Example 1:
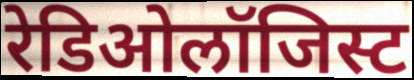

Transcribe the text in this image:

रेडिओलॉजिस्ट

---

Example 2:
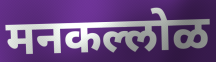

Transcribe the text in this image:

मनकल्लोळ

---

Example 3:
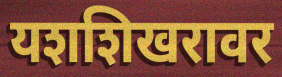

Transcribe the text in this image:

यशशिखरावर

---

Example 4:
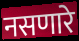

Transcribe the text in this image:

नसणारे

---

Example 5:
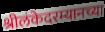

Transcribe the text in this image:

श्रीलंकेदरम्यानच्या